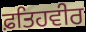
ਫ਼ਤਿਹਵੀਰ